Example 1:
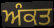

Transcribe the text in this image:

ਅੰਕਤ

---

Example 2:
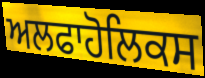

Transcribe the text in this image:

ਅਲਫਾਹੋਲਿਕਸ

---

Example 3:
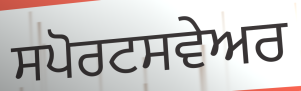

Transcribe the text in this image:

ਸਪੋਰਟਸਵੇਅਰ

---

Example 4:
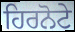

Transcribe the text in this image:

ਹਿਰਨੋਟੇ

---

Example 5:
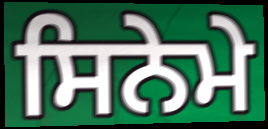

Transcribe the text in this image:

ਸਿਨੇਮੇ